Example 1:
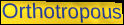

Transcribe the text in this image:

Orthotropous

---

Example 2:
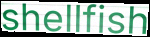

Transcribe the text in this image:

shellfish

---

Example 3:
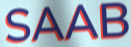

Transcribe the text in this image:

SAAB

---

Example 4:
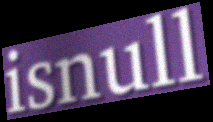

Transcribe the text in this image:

isnull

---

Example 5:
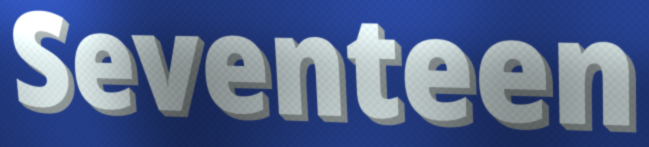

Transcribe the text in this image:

Seventeen